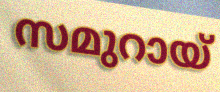
സമുറായ്